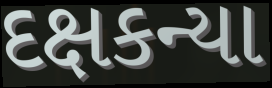
દક્ષકન્યા